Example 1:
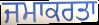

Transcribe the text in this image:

ਜਮਾਕਰਤਾ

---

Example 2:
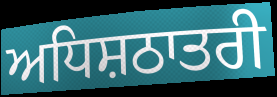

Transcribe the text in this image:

ਅਧਿਸ਼ਠਾਤਰੀ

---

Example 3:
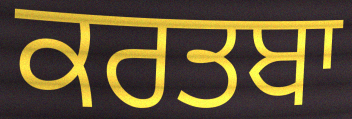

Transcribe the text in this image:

ਕਰਤਬਾ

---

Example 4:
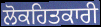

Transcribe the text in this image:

ਲੋਕਹਿਤਕਾਰੀ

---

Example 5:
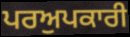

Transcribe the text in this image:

ਪਰਅੁਪਕਾਰੀ